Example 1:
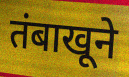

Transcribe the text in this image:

तंबाखूने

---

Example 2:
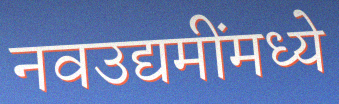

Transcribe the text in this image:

नवउद्यमींमध्ये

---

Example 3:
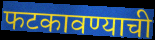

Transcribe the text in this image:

फटकावण्याची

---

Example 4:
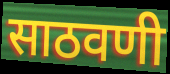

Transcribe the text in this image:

साठवणी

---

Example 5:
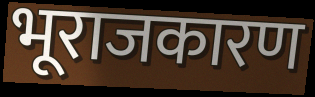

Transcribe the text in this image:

भूराजकारण